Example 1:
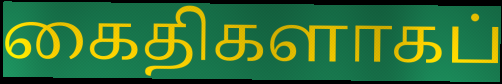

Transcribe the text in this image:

கைதிகளாகப்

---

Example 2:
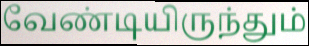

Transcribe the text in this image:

வேண்டியிருந்தும்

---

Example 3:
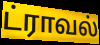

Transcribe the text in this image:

ட்ராவல்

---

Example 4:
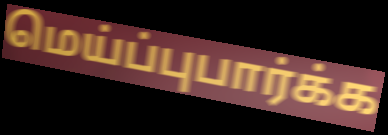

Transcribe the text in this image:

மெய்ப்புபார்க்க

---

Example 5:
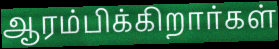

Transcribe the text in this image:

ஆரம்பிக்கிறார்கள்